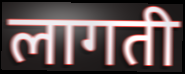
लागती